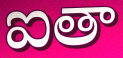
ఐతా